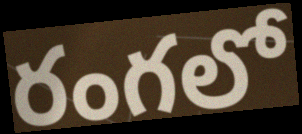
రంగలో